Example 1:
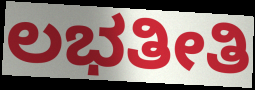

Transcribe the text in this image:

ಲಭತೀತಿ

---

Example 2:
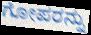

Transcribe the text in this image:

ಗೋಪರನ್ನು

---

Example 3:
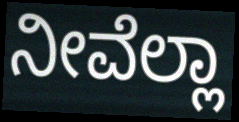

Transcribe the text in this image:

ನೀವೆಲ್ಲಾ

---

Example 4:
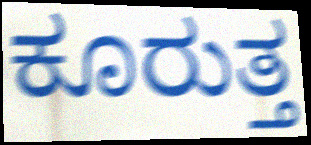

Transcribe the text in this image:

ಕೂರುತ್ತ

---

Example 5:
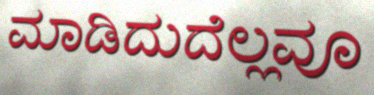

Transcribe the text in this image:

ಮಾಡಿದುದೆಲ್ಲವೂ